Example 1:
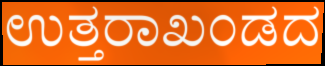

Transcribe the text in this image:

ಉತ್ತರಾಖಂಡದ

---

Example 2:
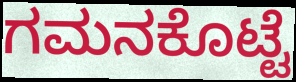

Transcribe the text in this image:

ಗಮನಕೊಟ್ಟೆ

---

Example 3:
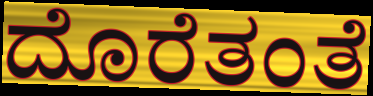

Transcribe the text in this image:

ದೊರೆತಂತೆ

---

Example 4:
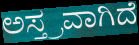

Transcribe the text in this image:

ಅಸ್ತ್ರವಾಗಿದೆ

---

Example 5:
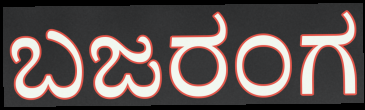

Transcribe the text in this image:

ಬಜರಂಗ